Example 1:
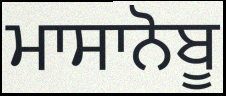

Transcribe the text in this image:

ਮਾਸਾਨੋਬੂ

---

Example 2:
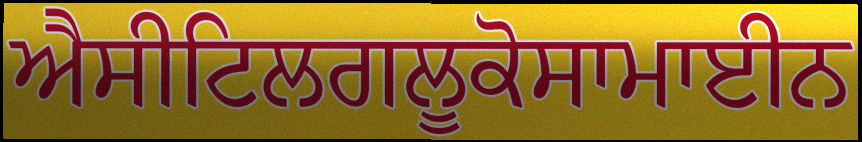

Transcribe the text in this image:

ਐਸੀਟਿਲਗਲੂਕੋਸਾਮਾਈਨ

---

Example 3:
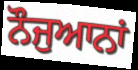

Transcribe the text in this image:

ਨੌਜੁਆਨਾਂ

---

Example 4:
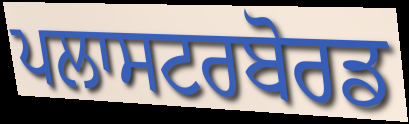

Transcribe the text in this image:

ਪਲਾਸਟਰਬੋਰਡ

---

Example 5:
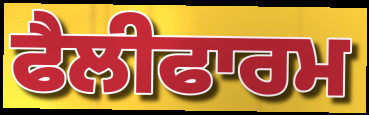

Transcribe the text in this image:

ਫੈਲੀਫਾਰਮ